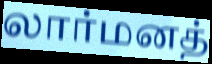
லார்மனத்